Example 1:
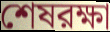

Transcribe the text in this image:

শেষরক্ষা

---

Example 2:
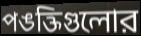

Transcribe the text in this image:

পঙক্তিগুলোর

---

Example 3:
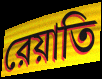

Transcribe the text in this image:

রেয়াতি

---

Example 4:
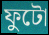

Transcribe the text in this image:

ফুটো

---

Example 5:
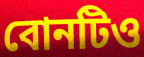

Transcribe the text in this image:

বোনটিও